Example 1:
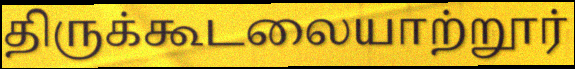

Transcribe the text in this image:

திருக்கூடலையாற்றூர்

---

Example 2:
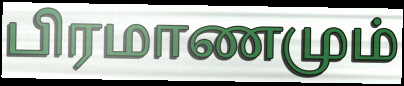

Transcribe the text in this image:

பிரமாணமும்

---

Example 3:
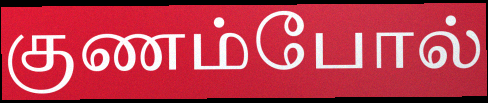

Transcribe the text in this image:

குணம்போல்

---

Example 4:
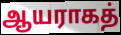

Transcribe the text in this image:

ஆயராகத்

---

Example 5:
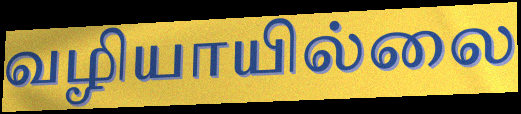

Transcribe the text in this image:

வழியாயில்லை